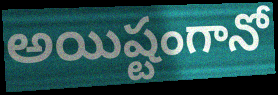
అయిష్టంగానో